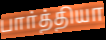
பார்த்தியா